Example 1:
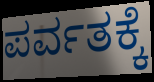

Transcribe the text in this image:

ಪರ್ವತಕ್ಕೆ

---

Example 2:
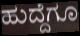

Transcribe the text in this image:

ಹುದ್ದೆಗೂ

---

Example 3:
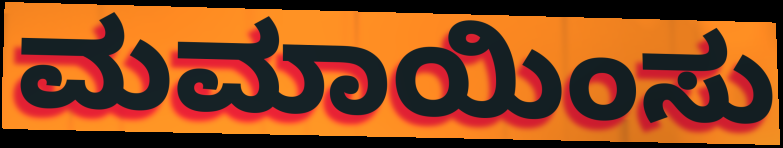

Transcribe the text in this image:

ಮಮಾಯಿಂಸು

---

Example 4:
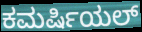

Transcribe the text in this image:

ಕಮರ್ಷಿಯಲ್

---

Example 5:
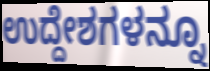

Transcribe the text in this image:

ಉದ್ದೇಶಗಳನ್ನೂ